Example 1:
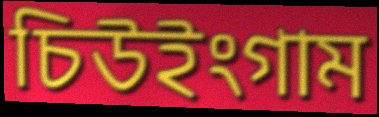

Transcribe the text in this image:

চিউইংগাম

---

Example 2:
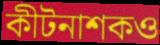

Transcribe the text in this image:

কীটনাশকও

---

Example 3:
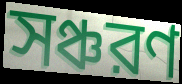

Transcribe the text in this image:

সঞ্চরণ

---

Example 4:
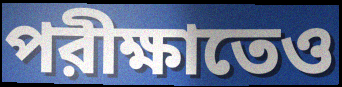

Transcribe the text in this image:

পরীক্ষাতেও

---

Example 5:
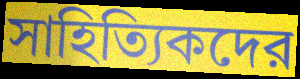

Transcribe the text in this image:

সাহিত্যিকদের